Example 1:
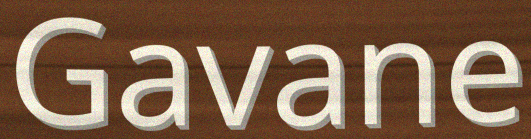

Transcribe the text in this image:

Gavane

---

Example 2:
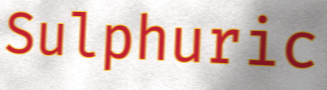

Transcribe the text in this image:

Sulphuric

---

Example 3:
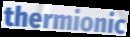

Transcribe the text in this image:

thermionic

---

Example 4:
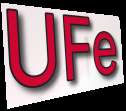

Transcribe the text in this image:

UFe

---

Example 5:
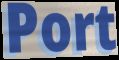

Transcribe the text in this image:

Port